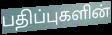
பதிப்புகளின்